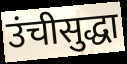
उंचीसुद्धा